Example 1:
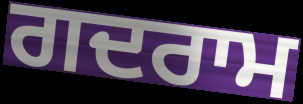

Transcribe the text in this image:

ਗਦਰਾਮ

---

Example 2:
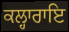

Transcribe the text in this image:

ਕਲ੍ਹਾਰਾਇ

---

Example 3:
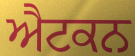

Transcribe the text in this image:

ਐਟਕਨ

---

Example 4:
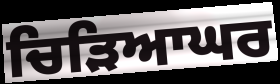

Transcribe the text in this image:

ਚਿੜਿਆਘਰ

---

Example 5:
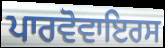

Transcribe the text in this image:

ਪਾਰਵੋਵਾਇਰਸ